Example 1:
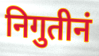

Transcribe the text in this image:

निगुतीनं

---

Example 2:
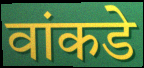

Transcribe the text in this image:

वांकडे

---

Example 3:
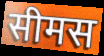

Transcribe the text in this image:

सीमस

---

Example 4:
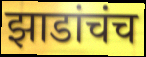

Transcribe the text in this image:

झाडांचंच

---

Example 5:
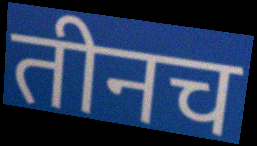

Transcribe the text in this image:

तीनच